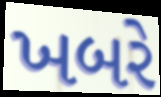
ખબરે